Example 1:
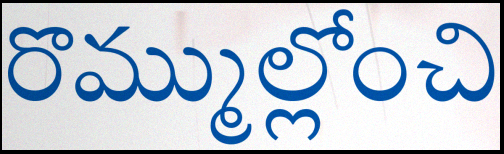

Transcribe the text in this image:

రొమ్ముల్లోంచి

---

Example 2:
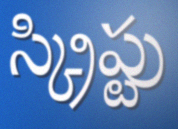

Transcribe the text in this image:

స్క్రిప్టు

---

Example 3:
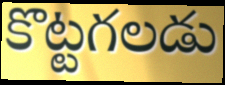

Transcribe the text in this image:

కొట్టగలడు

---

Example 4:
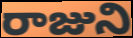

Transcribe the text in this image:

రాజుని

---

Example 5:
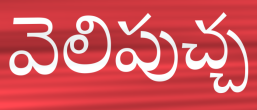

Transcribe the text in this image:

వెలిపుచ్చ